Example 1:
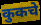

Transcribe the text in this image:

कुकचे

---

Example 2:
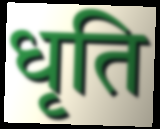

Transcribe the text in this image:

धृति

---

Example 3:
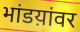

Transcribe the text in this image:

भांडय़ांवर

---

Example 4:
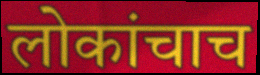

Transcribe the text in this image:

लोकांचाच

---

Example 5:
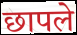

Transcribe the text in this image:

छापले